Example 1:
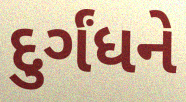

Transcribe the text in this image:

દુર્ગંધને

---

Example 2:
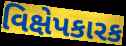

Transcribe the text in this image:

વિક્ષેપકારક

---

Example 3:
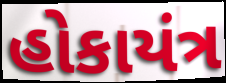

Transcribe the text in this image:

હોકાયંત્ર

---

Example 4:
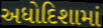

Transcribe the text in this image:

અધોદિશામાં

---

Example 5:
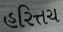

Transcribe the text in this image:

હરિત્તચ